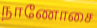
நாணோசை